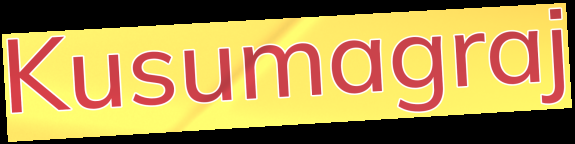
Kusumagraj